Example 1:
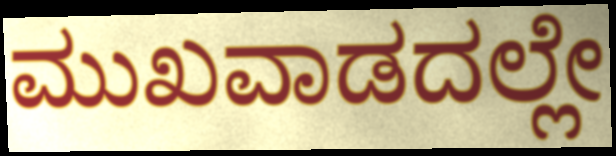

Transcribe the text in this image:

ಮುಖವಾಡದಲ್ಲೇ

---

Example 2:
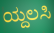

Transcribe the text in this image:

ಯ್ದಲಸಿ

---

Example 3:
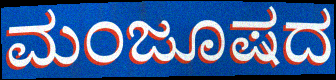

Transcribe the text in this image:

ಮಂಜೂಷದ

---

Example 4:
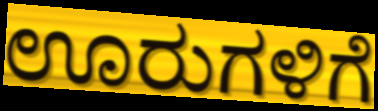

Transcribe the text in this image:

ಊರುಗಳಿಗೆ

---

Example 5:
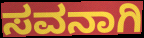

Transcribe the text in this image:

ಸವನಾಗಿ